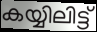
കയ്യിലിട്ട്